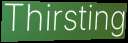
Thirsting